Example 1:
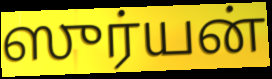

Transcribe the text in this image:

ஸுர்யன்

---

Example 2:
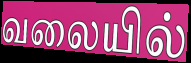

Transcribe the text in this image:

வலையில்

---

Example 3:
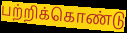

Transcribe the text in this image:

பற்றிக்கொண்டு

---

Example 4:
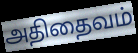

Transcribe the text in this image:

அதிதைவம்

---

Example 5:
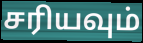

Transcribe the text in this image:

சரியவும்